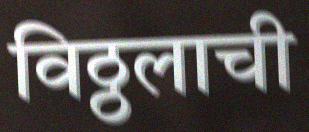
विठ्ठलाची